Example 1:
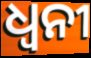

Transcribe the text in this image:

ଧ୍ବନୀ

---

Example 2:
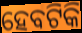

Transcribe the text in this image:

ହେବଟିକି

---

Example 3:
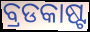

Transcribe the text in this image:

ବ୍ରଡକାଷ୍ଟ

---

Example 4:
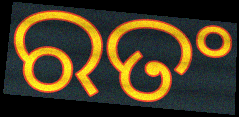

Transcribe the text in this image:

ରତଂ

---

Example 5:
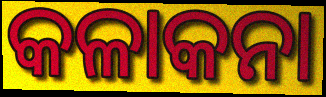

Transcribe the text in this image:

କଳାକନା